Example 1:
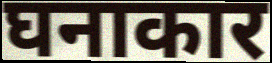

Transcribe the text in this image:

घनाकार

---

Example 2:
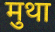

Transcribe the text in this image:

मुथा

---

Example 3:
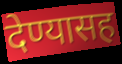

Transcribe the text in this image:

देण्यासह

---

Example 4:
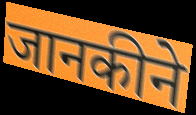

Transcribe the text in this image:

जानकीने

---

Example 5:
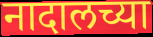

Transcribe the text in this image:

नादालच्या